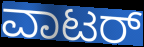
ವಾಟರ್